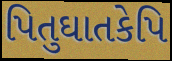
પિતુઘાતકેપિ